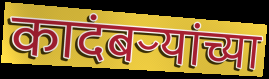
कादंबऱ्यांच्या